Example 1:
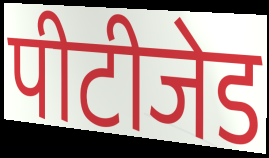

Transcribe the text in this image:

पीटीजेड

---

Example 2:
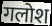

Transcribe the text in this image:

गलोश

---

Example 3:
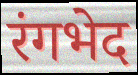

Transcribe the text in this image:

रंगभेद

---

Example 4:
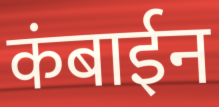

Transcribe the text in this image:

कंबाईन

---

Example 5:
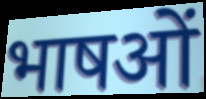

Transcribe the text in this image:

भाषओं